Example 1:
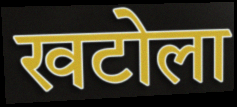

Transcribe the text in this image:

खटोला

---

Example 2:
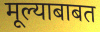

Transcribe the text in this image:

मूल्याबाबत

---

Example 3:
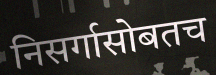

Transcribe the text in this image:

निसर्गासोबतच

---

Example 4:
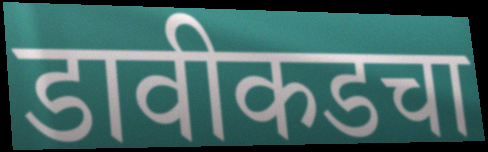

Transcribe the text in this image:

डावीकडचा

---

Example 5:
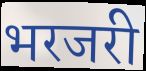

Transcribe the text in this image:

भरजरी